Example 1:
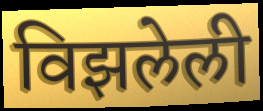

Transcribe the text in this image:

विझलेली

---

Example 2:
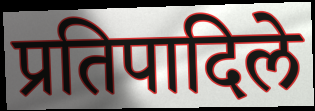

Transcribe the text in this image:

प्रतिपादिले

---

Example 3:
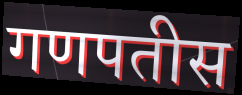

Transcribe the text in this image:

गणपतीस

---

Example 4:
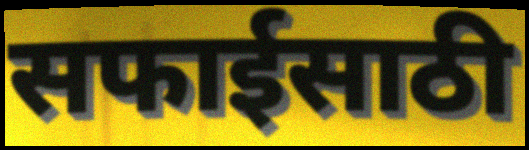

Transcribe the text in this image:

सफाईसाठी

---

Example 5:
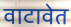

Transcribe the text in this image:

वाटावेत